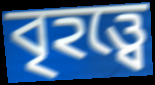
বৃহত্ত্বে